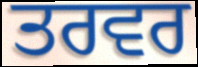
ਤਰਵਰ